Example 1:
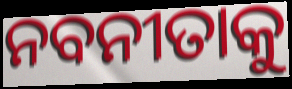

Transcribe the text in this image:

ନବନୀତାକୁ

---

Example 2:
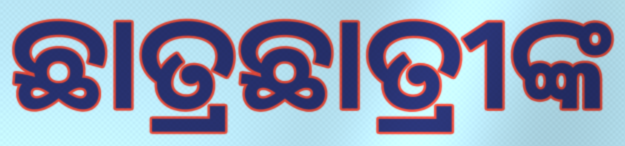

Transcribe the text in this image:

ଛାତ୍ରଛାତ୍ରୀଙ୍କ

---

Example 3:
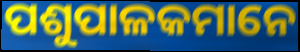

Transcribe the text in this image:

ପଶୁପାଳକମାନେ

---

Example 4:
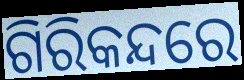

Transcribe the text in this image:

ଗିରିକନ୍ଦରେ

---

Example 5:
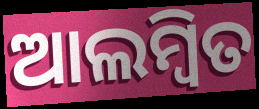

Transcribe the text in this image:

ଆଲମ୍ୱିତ